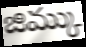
జిమ్కు